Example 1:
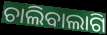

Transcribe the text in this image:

ଚାଲିବାଲାଗି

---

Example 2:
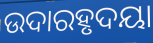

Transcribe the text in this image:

ଉଦାରହୃଦୟା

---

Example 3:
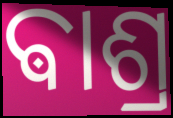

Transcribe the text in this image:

ଵାଶ୍ର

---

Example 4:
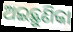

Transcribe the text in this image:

ଅଇଛୁଣିକା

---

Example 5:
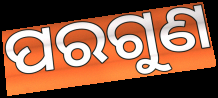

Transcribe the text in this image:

ପରଗୁଣ